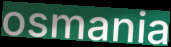
osmania